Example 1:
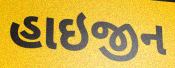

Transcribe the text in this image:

હાઇજીન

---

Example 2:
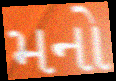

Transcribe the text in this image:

મનો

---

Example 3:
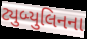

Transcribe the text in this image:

ટ્યુબ્યુલિનના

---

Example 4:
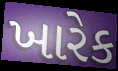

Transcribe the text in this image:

ખારેક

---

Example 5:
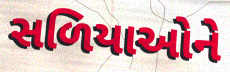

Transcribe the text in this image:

સળિયાઓને